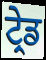
ਟ੍ਰੇਡ